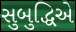
સુબુદ્ધિએ